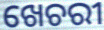
ଖେଚରୀ